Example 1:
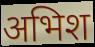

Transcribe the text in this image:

अभिश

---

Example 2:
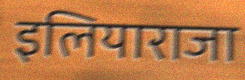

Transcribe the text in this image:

इलियाराजा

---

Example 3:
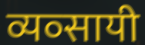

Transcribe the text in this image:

व्यव्सायी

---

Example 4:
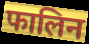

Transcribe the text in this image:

फालिन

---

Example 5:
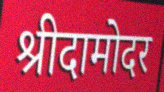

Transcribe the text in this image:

श्रीदामोदर